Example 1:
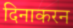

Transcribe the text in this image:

दिनाकरन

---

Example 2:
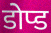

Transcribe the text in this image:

डोप्ड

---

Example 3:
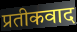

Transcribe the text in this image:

प्रतीकवाद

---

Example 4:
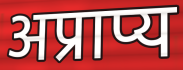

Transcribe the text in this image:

अप्राप्य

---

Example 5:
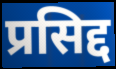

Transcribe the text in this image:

प्रसिद्द